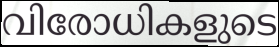
വിരോധികളുടെ